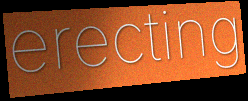
erecting